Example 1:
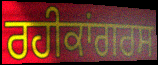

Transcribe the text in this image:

ਰਹੀਕਾਂਗਰਸ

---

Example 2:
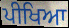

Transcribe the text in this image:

ਪੀਖਿਆ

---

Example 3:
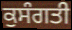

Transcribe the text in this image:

ਕੁਸੰਗਤੀ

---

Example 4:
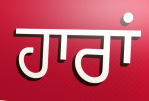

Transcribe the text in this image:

ਹਾਰਾਂ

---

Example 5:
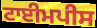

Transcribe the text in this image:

ਟਾਈਮਪੀਸ